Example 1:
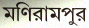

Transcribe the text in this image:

মণিরামপুর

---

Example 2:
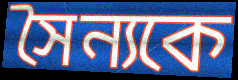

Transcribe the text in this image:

সৈন্যকে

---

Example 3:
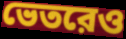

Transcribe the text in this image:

ভেতরেও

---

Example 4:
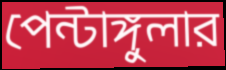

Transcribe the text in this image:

পেন্টাঙ্গুলার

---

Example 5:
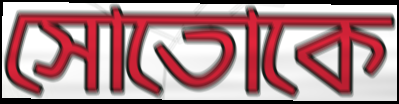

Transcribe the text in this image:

সোতোকে